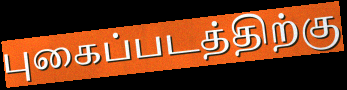
புகைப்படத்திற்கு